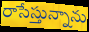
రాసేస్తున్నాను